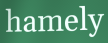
hamely